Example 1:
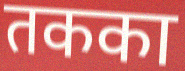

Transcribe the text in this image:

तकका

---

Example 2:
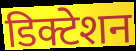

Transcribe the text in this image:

डिक्टेशन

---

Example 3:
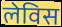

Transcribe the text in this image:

लेविस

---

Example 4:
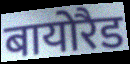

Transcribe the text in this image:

बायोरैड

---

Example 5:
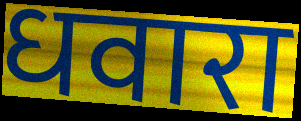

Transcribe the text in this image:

धवारा